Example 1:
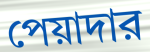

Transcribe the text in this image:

পেয়াদার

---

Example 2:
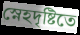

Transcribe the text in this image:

স্নেহদৃষ্টিতে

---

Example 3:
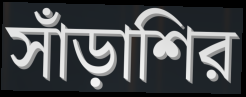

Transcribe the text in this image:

সাঁড়াশির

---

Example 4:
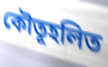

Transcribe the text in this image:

কৌতূহলিত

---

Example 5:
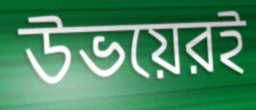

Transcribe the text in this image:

উভয়েরই